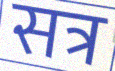
सत्र